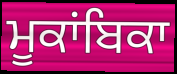
ਮੂਕਾਂਬਿਕਾ